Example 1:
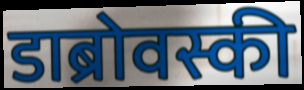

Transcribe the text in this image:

डाब्रोवस्की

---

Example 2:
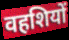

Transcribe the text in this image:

वहशियों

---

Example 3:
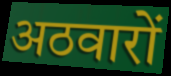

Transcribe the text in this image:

अठवारों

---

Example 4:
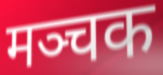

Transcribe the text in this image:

मञ्चक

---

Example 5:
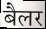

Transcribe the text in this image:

बैलर